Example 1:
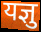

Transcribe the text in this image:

यज्ञु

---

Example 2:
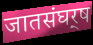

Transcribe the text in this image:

जातसंघर्ष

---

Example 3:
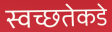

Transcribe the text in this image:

स्वच्छतेकडे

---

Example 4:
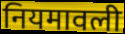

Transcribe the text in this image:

नियमावली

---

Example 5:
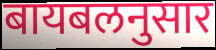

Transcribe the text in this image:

बायबलनुसार